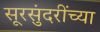
सूरसुंदरींच्या